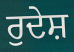
ਰੁਦੇਸ਼